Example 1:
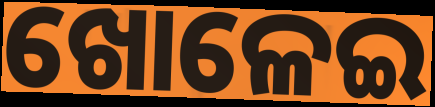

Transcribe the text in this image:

ଖୋଳେଇ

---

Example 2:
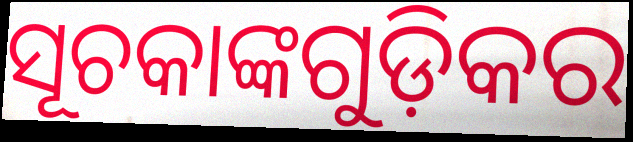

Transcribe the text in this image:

ସୂଚକାଙ୍କଗୁଡ଼ିକର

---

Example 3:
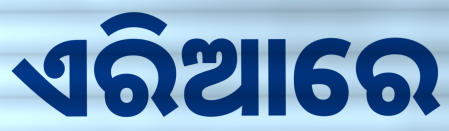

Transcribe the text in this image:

ଏରିଆରେ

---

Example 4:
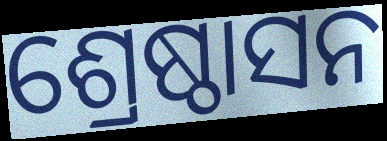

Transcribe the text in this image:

ଶ୍ରେଷ୍ଠାସନ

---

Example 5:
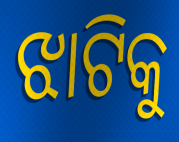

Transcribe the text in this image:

ଝାଟିକୁ